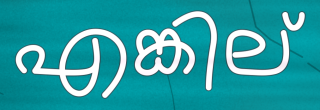
എങ്കില്